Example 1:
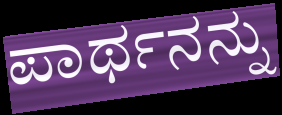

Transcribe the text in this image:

ಪಾರ್ಥನನ್ನು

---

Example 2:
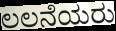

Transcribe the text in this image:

ಲಲನೆಯರು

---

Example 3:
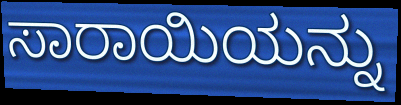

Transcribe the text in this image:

ಸಾರಾಯಿಯನ್ನು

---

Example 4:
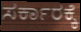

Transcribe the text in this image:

ಸರ್ಕಾರಕ್ಕೆ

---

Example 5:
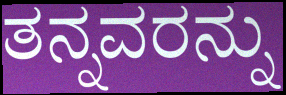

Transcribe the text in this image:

ತನ್ನವರನ್ನು